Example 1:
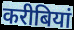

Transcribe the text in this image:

करीबियां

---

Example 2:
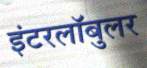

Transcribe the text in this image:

इंटरलॉबुलर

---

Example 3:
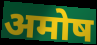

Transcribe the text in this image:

अमोष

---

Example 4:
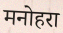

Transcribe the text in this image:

मनोहरा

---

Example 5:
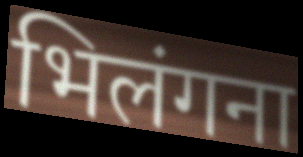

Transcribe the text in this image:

भिलंगना